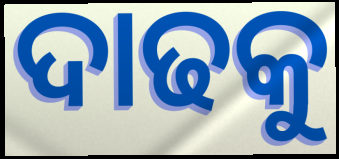
ଦାଢକୁ